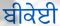
ਬੀਕੇਈ